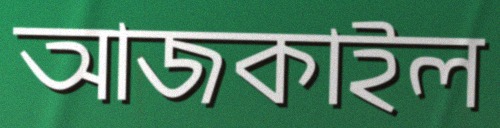
আজকাইল